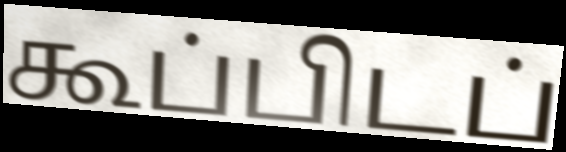
கூப்பிடப்